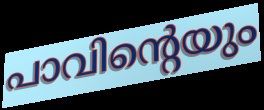
പാവിന്റെയും